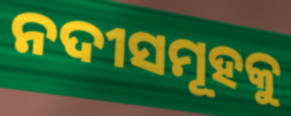
ନଦୀସମୂହକୁ